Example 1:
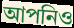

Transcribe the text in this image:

আপনিও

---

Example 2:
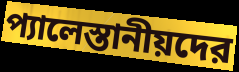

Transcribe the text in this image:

প্যালেস্তানীয়দের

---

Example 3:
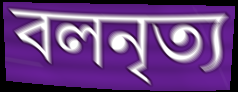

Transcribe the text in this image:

বলনৃত্য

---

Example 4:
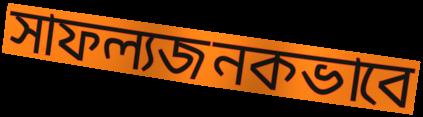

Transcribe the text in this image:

সাফল্যজনকভাবে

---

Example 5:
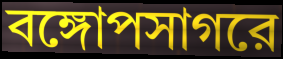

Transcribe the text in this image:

বঙ্গোপসাগরে